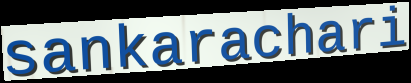
sankarachari